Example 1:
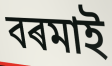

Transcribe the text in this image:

বৰমাই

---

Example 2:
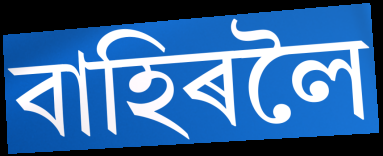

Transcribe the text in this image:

বাহিৰলৈ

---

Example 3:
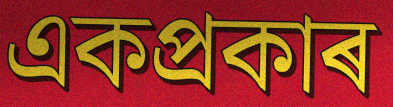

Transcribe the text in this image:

একপ্ৰকাৰ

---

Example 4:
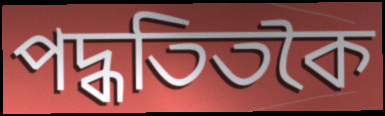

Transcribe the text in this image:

পদ্ধতিতকৈ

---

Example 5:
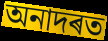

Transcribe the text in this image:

অনাদৰত